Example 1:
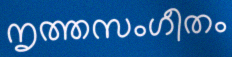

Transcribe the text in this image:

നൃത്തസംഗീതം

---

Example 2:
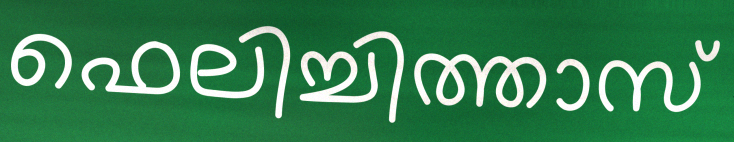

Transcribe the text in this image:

ഫെലിച്ചിത്താസ്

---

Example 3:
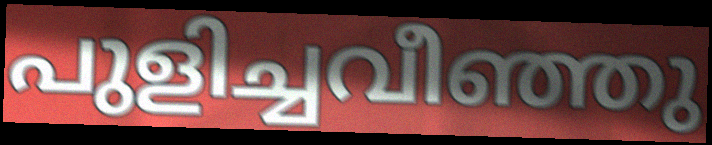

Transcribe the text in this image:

പുളിച്ചവീഞ്ഞു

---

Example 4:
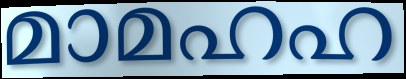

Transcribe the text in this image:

മാമഹഹ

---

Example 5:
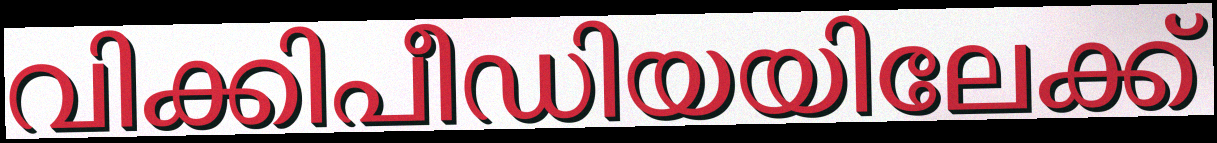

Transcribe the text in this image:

വിക്കിപീഡിയയിലേക്ക്